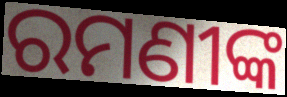
ରମଣୀଙ୍କ